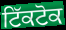
ਟਿੱਕਟੋਕ